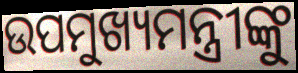
ଉପମୁଖ୍ୟମନ୍ତ୍ରୀଙ୍କୁ